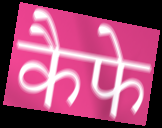
कैफे